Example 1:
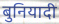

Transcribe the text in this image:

बुनियादी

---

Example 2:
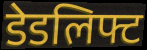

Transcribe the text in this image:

डेडलिफ्ट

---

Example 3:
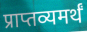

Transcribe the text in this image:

प्राप्तव्यमर्थं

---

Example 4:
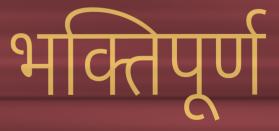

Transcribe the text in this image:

भक्तिपूर्ण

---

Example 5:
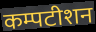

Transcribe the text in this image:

कम्पटीशन